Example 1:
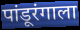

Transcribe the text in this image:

पांडूरंगाला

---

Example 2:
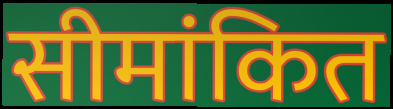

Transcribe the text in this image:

सीमांकित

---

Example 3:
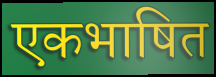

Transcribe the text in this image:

एकभाषित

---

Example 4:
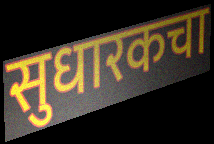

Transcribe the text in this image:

सुधारकचा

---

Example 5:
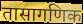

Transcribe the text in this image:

तासागणिक